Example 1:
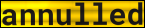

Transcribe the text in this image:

annulled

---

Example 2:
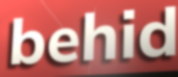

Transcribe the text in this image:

behid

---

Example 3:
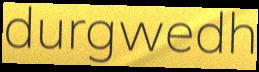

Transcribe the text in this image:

durgwedh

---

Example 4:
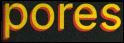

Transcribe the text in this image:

pores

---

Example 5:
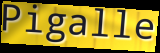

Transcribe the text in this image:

Pigalle